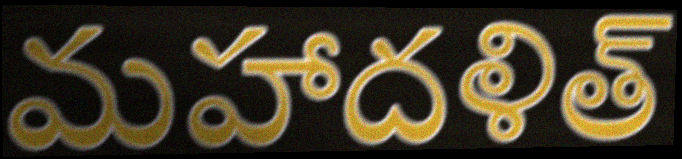
మహాదళిత్